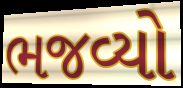
ભજવ્યો